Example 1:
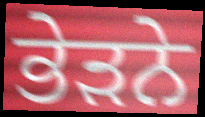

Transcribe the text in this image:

ਭੇੜਨੇ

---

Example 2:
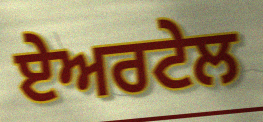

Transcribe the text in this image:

ਏਅਰਟੇਲ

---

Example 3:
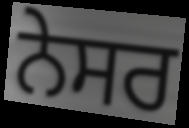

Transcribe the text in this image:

ਨੇਸਰ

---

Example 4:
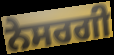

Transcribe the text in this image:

ਨੇਸਰਗੀ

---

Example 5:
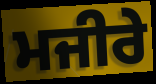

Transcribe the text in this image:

ਮਜੀਰੇ